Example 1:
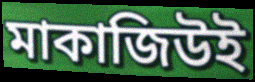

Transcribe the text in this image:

মাকাজিউই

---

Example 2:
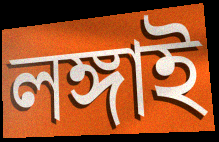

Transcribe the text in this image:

লঙ্গাই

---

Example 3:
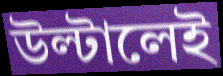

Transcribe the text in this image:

উল্টালেই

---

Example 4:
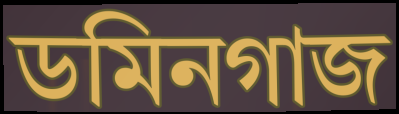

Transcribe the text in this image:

ডমিনগাজ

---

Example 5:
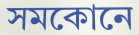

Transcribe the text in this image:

সমকোনে